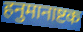
हनुमानाष्टक